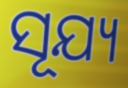
ସୂଯ୍ୟ